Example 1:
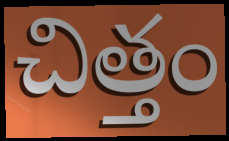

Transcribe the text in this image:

చిత్తం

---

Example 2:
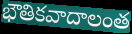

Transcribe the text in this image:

భౌతికవాదాలంత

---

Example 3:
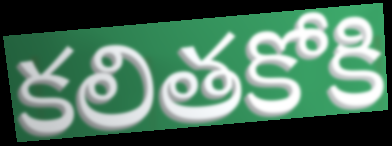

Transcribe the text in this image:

కలితకోకి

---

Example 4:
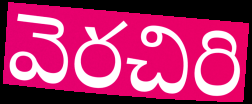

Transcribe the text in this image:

వెరచిరి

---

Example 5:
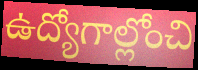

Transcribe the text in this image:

ఉద్యోగాల్లోంచి